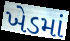
ખેડમાં